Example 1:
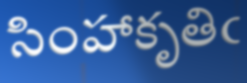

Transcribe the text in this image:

సింహాకృతిఁ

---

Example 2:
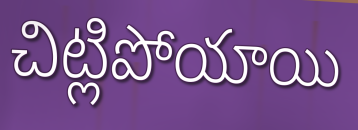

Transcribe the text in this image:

చిట్లిపోయాయి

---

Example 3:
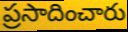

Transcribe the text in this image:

ప్రసాదించారు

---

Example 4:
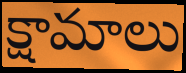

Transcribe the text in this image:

క్షామాలు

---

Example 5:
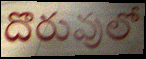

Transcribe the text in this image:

దొరువులో